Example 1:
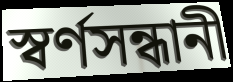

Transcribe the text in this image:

স্বর্ণসন্ধানী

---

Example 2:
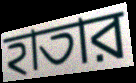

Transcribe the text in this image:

হাতার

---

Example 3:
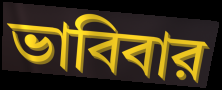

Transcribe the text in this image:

ভাবিবার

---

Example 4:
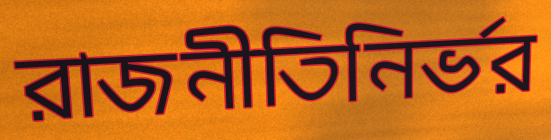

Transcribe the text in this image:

রাজনীতিনির্ভর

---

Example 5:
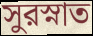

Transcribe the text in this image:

সুরস্নাত